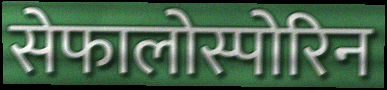
सेफालोस्पोरिन